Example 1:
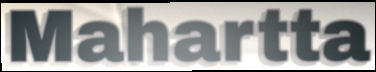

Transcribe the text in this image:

Mahartta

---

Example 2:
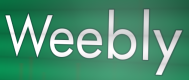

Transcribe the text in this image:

Weebly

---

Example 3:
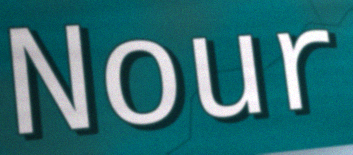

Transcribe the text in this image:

Nour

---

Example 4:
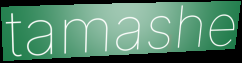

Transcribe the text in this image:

tamashe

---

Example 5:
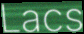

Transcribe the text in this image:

Lacs